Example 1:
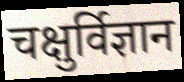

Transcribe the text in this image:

चक्षुर्विज्ञान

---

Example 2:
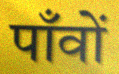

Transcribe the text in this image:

पाँवों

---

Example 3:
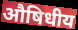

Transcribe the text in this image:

औषिधीय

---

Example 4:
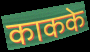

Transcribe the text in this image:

काकके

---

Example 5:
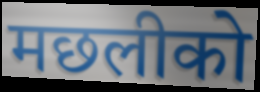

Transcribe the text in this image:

मछलीको